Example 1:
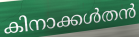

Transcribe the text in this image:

കിനാക്കൾതൻ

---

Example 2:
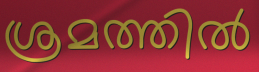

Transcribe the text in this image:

ശ്രമത്തിൽ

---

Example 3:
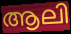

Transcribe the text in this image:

ആലി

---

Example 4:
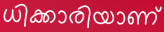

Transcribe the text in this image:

ധിക്കാരിയാണ്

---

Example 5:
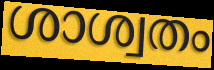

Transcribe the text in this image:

ശാശ്വതം